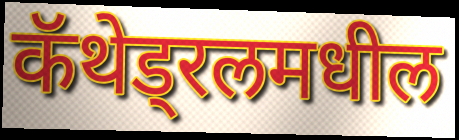
कॅथेड्रलमधील